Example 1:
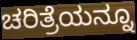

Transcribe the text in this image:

ಚರಿತ್ರೆಯನ್ನೂ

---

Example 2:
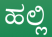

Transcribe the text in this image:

ಹಲ್ಲಿ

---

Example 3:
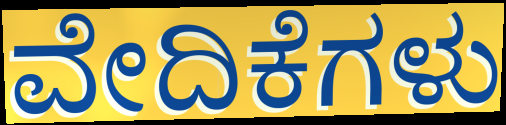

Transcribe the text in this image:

ವೇದಿಕೆಗಳು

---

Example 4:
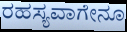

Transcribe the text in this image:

ರಹಸ್ಯವಾಗೇನೂ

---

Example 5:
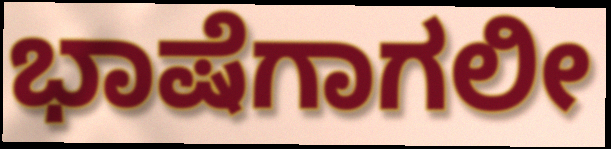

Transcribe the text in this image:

ಭಾಷೆಗಾಗಲೀ